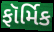
ફૉર્મિક